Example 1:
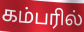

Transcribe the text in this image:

கம்பரில்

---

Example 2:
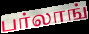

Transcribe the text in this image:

பர்லாங்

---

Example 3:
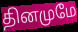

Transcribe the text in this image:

தினமுமே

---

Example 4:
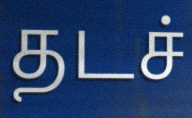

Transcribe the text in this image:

தடச்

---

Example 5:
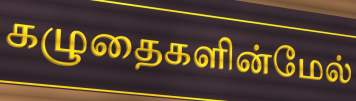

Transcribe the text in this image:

கழுதைகளின்மேல்